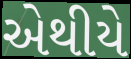
એથીયે